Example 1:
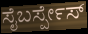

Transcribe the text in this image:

ಸೈಬರ್ಸ್ಪೇಸ್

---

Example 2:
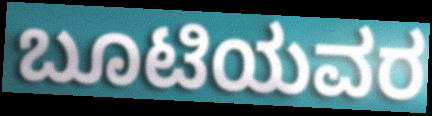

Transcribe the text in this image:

ಬೂಟಿಯವರ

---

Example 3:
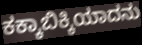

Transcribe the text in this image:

ಕಕ್ಕಾಬಿಕ್ಕಿಯಾದನು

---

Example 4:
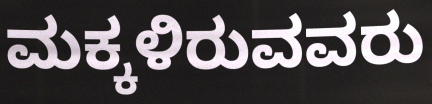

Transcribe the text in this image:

ಮಕ್ಕಳಿರುವವರು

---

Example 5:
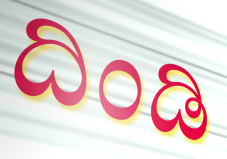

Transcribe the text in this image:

ದಿಂಡಿ